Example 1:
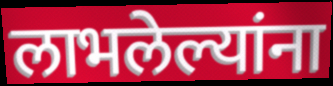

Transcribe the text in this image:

लाभलेल्यांना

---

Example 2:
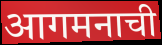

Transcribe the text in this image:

आगमनाची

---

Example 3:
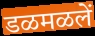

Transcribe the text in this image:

डळमळलें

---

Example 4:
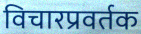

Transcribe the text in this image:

विचारप्रवर्तक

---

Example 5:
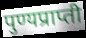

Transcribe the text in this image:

पुण्यप्राप्ती